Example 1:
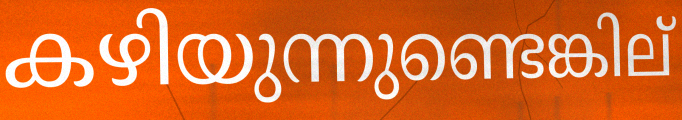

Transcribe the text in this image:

കഴിയുന്നുണ്ടെങ്കില്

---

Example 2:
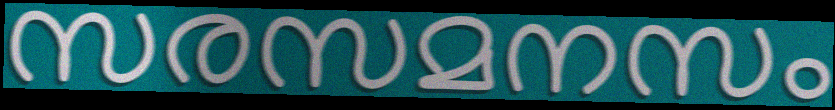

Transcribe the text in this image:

സരസമനസം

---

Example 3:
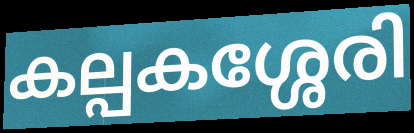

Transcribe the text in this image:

കല്പകശ്ശേരി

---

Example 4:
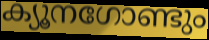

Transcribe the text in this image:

ക്യൂനഗോണ്ടും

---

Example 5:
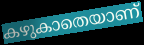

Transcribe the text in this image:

കഴുകാതെയാണ്